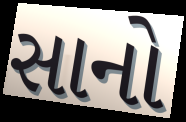
સાનો